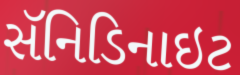
સૅનિડિનાઇટ